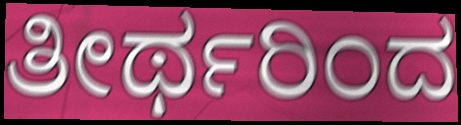
ತೀರ್ಥರಿಂದ